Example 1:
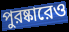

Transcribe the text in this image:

পুরষ্কারেও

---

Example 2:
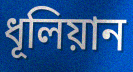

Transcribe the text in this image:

ধূলিয়ান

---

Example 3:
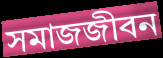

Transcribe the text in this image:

সমাজজীবন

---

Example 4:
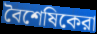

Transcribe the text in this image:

বৈশেষিকেরা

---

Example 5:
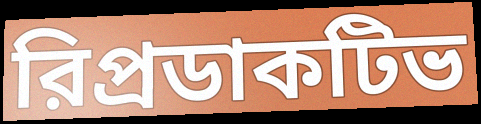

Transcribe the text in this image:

রিপ্রডাকটিভ